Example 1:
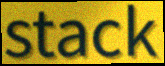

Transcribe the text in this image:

stack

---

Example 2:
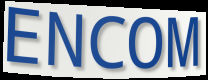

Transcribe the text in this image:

ENCOM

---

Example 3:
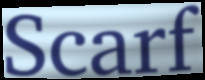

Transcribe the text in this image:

Scarf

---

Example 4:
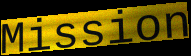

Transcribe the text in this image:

Mission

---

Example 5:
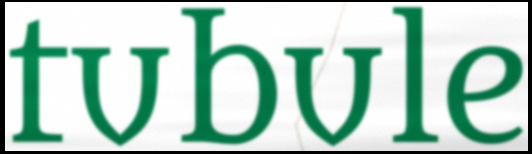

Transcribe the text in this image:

tubule